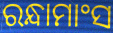
ରନ୍ଧାମାଂସ